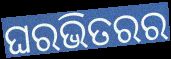
ଘରଭିତରର